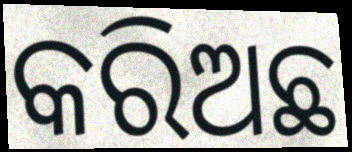
କରିଅଛ